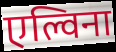
एल्विना